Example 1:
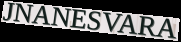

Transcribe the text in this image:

JNANESVARA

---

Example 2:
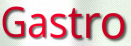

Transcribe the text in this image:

Gastro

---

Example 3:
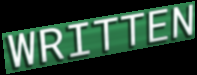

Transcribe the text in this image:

WRITTEN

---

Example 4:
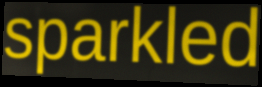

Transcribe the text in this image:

sparkled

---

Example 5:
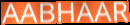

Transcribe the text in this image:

AABHAAR